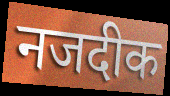
नजदीक